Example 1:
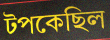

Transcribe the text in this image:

টপকেছিল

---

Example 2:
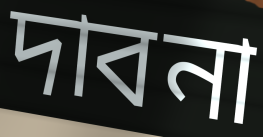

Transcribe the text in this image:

দাবনা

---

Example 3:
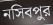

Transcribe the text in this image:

নসিবপুর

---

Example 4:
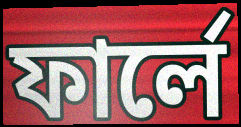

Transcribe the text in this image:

ফার্লে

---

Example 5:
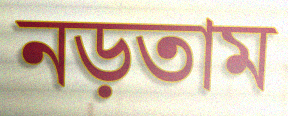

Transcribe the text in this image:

নড়তাম